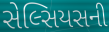
સેલ્સિયસની